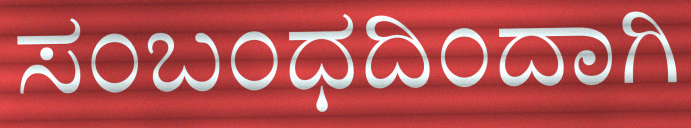
ಸಂಬಂಧದಿಂದಾಗಿ